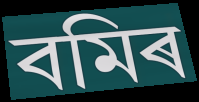
বমিৰ